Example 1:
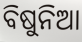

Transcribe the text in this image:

ବିଷୁନିଆ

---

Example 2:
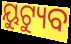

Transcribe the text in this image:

ୟୁଟ୍ୟୁବ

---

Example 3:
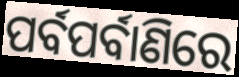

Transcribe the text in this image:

ପର୍ବପର୍ବାଣିରେ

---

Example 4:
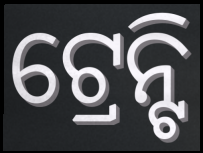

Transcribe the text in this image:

ଟ୍ରେନ୍ଟି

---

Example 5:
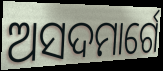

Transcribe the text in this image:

ଅସଦମାର୍ଗେ